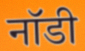
नॉडी